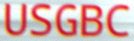
USGBC